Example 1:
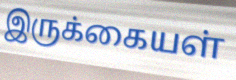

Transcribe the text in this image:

இருக்கையள்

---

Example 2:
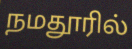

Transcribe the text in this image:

நமதூரில்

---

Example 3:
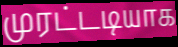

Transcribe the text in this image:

முரட்டடியாக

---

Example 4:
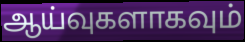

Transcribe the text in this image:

ஆய்வுகளாகவும்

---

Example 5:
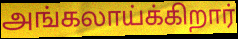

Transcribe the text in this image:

அங்கலாய்க்கிறார்